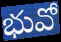
భువో